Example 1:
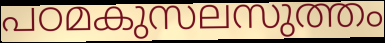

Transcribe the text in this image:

പഠമകുസലസുത്തം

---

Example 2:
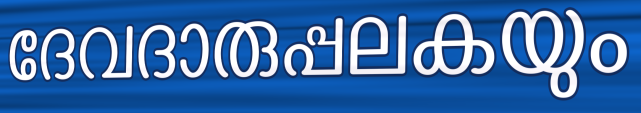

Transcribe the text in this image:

ദേവദാരുപ്പലകയും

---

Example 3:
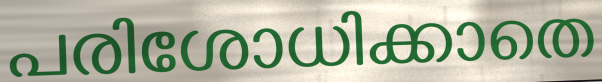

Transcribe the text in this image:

പരിശോധിക്കാതെ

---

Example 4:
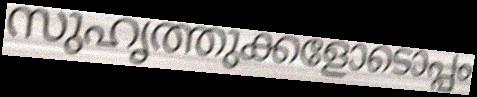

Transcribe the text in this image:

സുഹൃത്തുക്കളോടൊപ്പം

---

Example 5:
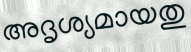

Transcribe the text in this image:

അദൃശ്യമായതു